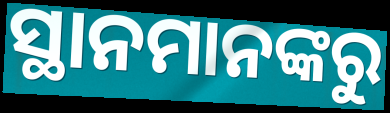
ସ୍ଥାନମାନଙ୍କରୁ